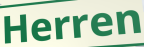
Herren